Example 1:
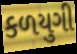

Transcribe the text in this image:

કળયુગી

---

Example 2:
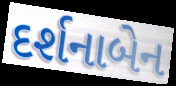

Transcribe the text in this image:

દર્શનાબેન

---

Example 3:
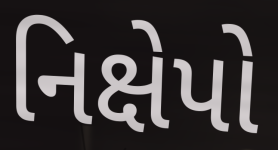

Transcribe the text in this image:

નિક્ષેપો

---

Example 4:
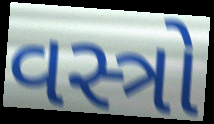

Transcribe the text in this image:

વસ્ત્રો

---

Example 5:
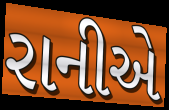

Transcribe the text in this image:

રાનીએ